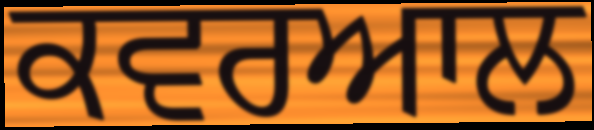
ਕਵਰਆਲ